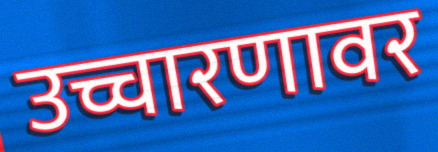
उच्चारणावर